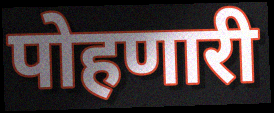
पोहणारी